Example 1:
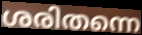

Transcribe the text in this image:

ശരിതന്നെ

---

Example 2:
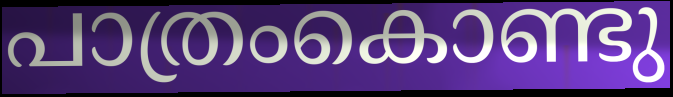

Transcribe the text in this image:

പാത്രംകൊണ്ടു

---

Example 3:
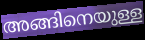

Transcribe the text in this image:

അങ്ങിനെയുള്ള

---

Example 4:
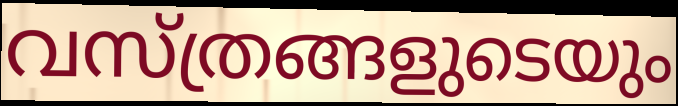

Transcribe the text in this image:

വസ്ത്രങ്ങളുടെയും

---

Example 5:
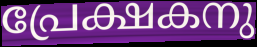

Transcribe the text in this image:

പ്രേക്ഷകനു